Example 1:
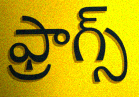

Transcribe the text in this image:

ఫ్రాగ్స్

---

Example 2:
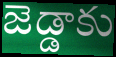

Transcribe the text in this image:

జెడ్డాకు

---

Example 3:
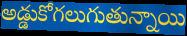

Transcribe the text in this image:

అడ్డుకోగలుగుతున్నాయి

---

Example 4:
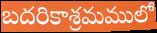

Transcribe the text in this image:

బదరికాశ్రమములో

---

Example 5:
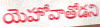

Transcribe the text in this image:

యెహోవాతోడని